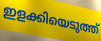
ഇളക്കിയെടുത്ത്